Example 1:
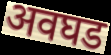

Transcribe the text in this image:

अवघड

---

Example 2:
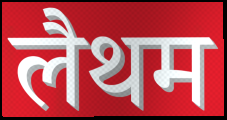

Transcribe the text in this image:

लैथम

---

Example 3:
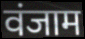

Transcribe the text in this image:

वंजाम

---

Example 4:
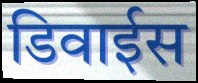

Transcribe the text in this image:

डिवाईस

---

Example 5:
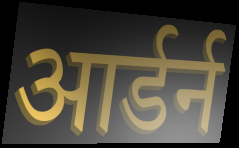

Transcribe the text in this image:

आर्डर्न